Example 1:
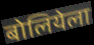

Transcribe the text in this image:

बोलियेला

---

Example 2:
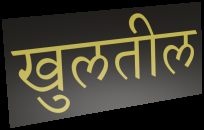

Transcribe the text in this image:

खुलतील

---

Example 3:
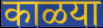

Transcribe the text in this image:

काळया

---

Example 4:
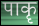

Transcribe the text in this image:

पाकॄ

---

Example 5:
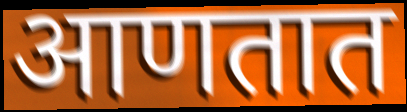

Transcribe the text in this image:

आणतात